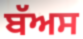
ਬੱਅਸ